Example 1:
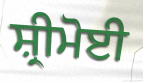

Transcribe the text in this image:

ਸ਼੍ਰੀਮੋਈ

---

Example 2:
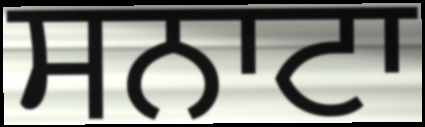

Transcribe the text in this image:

ਸਨਾਟਾ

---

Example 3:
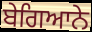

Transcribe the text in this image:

ਬੇਗਿਆਨੇ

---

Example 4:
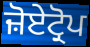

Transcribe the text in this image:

ਜ਼ੋਏਟ੍ਰੋਪ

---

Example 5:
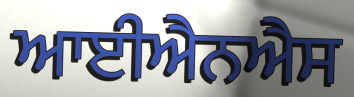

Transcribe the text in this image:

ਆਈਐਨਐਸ